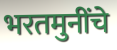
भरतमुनींचे